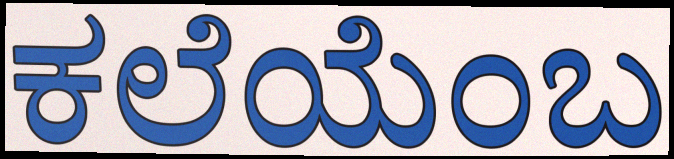
ಕಲೆಯೆಂಬ